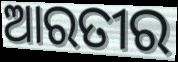
ଆରତୀର